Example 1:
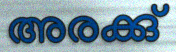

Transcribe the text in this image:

അരക്കു്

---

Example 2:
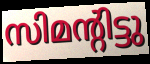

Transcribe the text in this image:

സിമന്റിട്ടു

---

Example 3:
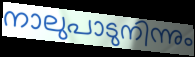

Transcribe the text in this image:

നാലുപാടുനിന്നും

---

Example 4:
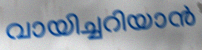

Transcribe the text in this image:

വായിച്ചറിയാൻ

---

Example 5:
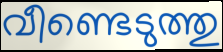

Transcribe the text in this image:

വീണ്ടെടുത്തു